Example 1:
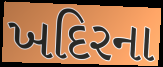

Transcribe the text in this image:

ખદિરના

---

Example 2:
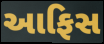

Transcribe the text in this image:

આફિસ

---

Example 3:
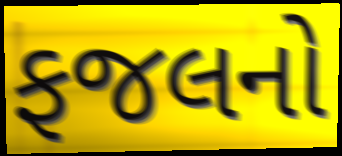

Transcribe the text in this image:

ફજલનો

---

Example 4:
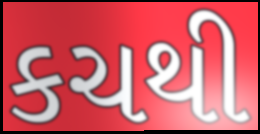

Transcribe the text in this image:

કચથી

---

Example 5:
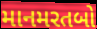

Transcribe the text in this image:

માનમરતબો